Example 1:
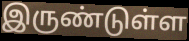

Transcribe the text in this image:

இருண்டுள்ள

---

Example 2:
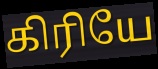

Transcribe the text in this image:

கிரியே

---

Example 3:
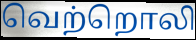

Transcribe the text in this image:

வெற்றொலி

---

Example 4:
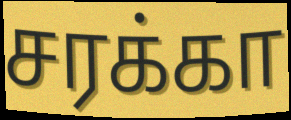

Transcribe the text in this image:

சரக்கா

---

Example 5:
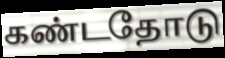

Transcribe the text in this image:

கண்டதோடு